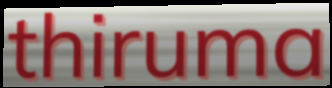
thiruma